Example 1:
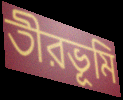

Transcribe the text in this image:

তীরভূমি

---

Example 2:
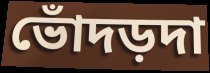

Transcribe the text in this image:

ভোঁদড়দা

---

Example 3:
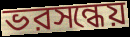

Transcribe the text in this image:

ভরসন্ধেয়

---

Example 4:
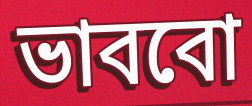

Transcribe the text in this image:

ভাববো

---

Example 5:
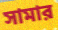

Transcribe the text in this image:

সামার